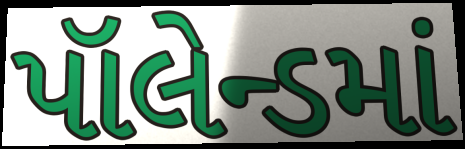
પૉલેન્ડમાં